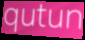
qutun